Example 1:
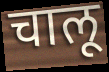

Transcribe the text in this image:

चालू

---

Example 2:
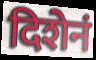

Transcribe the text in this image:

दिशेनं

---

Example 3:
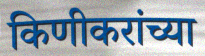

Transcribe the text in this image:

किणीकरांच्या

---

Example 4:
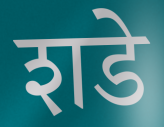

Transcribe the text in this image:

शडे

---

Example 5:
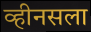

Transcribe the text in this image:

व्हीनसला